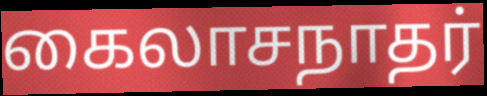
கைலாசநாதர்